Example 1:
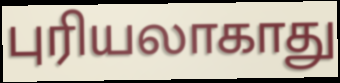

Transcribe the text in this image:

புரியலாகாது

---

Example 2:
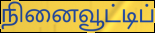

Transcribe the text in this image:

நினைவூட்டிப்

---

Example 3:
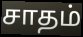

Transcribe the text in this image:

சாதம்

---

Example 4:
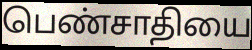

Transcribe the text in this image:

பெண்சாதியை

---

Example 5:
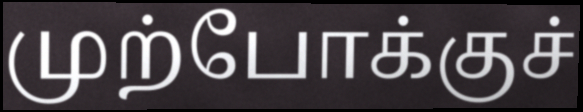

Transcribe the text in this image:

முற்போக்குச்